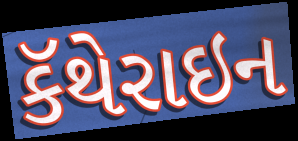
કૅથેરાઇન